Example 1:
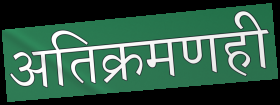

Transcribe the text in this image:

अतिक्रमणही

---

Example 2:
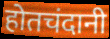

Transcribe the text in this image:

होतचंदानी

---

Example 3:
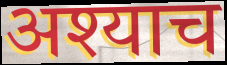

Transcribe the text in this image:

अश्याच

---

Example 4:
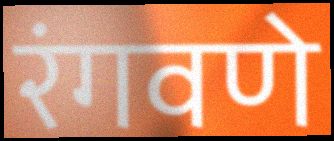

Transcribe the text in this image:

रंगवणे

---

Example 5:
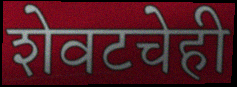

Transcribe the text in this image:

शेवटचेही